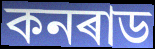
কনৰাড